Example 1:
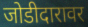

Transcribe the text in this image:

जोडीदारावर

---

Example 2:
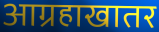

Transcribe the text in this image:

आग्रहाखातर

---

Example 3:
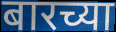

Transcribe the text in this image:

बारच्या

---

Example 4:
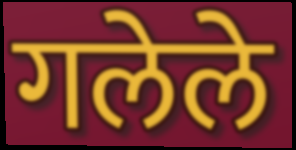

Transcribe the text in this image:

गलेले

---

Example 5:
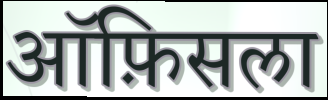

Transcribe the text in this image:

ऑफ़िसला